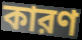
কারণ